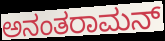
ಅನಂತರಾಮನ್